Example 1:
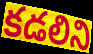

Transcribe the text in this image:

కడలిని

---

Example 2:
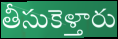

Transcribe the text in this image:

తీసుకెళ్తారు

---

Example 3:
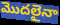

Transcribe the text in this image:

మొదలైనా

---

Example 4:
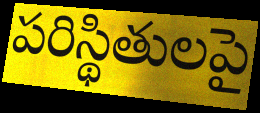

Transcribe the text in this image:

పరిస్థితులపై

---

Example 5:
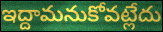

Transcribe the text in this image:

ఇద్దామనుకోవట్లేదు